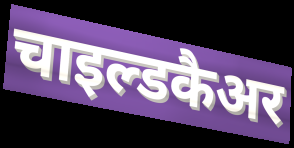
चाइल्डकैअर